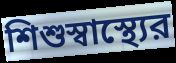
শিশুস্বাস্থ্যের